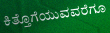
ಕಿತ್ತೊಗೆಯುವವರೆಗೂ